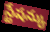
స్టేషన్కు